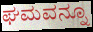
ಘಮವನ್ನೂ